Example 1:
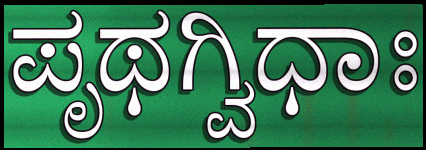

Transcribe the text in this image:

ಪೃಥಗ್ವಿಧಾಃ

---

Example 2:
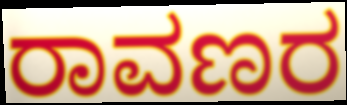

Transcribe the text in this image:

ರಾವಣರ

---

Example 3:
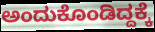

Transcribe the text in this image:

ಅಂದುಕೊಂಡಿದ್ದಕ್ಕೆ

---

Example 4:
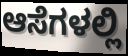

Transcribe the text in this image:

ಆಸೆಗಳಲ್ಲಿ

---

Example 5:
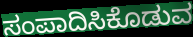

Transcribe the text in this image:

ಸಂಪಾದಿಸಿಕೊಡುವ